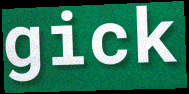
gick